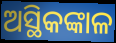
ଅସ୍ଥିକଙ୍କାଳ